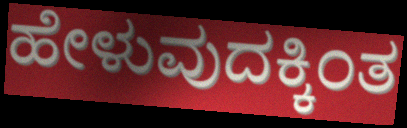
ಹೇಳುವುದಕ್ಕಿಂತ